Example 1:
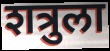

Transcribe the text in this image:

शत्रुला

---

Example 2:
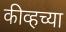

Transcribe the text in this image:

कीव्हच्या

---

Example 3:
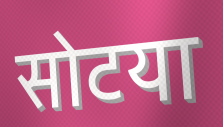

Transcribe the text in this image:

सोटया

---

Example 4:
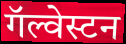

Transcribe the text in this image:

गॅल्वेस्टन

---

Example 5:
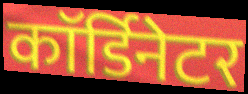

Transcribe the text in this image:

कॉर्डिनेटर